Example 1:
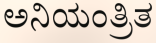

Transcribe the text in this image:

ಅನಿಯಂತ್ರಿತ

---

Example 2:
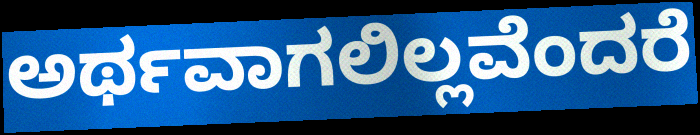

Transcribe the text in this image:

ಅರ್ಥವಾಗಲಿಲ್ಲವೆಂದರೆ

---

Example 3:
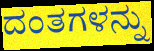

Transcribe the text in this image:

ದಂತಗಳನ್ನು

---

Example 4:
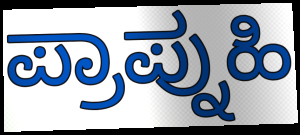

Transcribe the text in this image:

ಪ್ರಾಪ್ನುಹಿ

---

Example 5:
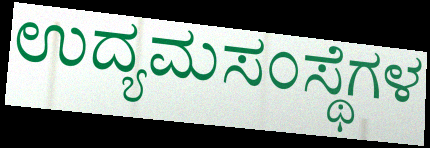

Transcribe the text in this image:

ಉದ್ಯಮಸಂಸ್ಥೆಗಳ